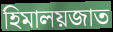
হিমালয়জাত